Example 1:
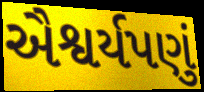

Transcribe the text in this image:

ઐશ્વર્યપણું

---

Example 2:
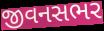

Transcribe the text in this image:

જીવનસભર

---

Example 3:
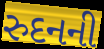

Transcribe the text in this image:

રુદનની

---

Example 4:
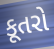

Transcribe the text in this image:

કૂતરો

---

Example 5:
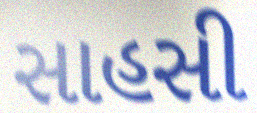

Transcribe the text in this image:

સાહસી